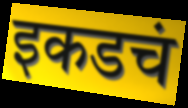
इकडचं